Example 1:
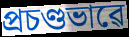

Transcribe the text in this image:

প্ৰচণ্ডভাৱে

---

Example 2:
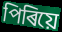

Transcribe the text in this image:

পিৰিয়ে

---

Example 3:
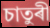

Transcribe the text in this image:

চাতুৰী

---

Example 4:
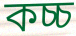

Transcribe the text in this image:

কচ্চ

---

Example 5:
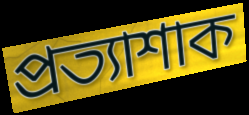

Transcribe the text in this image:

প্ৰত্যাশাক